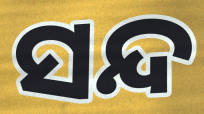
ସନ୍ଦ